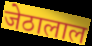
जेठालाल